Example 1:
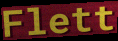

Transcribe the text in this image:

Flett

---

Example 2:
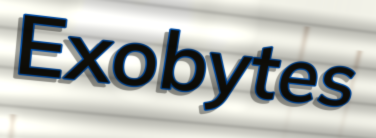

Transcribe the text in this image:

Exobytes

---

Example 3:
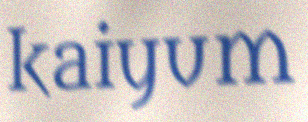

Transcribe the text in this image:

kaiyum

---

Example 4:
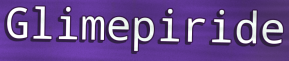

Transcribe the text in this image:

Glimepiride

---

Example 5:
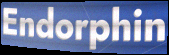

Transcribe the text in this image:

Endorphin